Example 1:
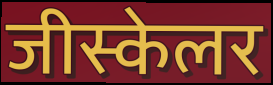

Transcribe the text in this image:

जीस्केलर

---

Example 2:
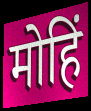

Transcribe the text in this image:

मोहिं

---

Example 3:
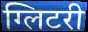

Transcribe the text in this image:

ग्लिटरी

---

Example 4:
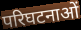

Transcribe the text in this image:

परिघटनाओं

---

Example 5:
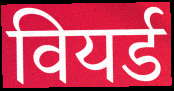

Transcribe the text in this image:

वियर्ड